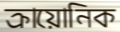
ক্রায়োনিক